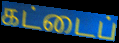
கட்டைப்